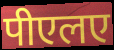
पीएलए